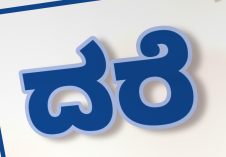
ದರೆ